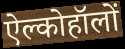
ऐल्कोहॉलों